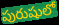
పురుషులో